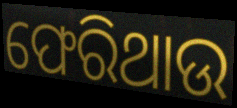
ଫେରିଥାଉ